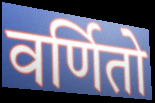
वर्णितो